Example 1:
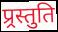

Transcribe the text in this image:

प्र्रस्तुति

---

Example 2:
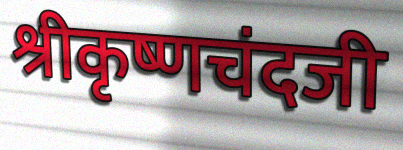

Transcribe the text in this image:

श्रीकृष्णचंदजी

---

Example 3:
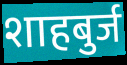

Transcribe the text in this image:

शाहबुर्ज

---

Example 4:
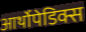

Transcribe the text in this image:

आर्थोपेडिक्स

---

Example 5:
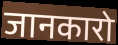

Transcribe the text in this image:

जानकारो